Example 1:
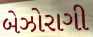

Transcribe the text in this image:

બેઝોરાગી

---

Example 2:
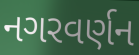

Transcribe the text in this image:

નગરવર્ણન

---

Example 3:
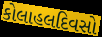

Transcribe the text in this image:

કોલાહલદિવસો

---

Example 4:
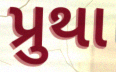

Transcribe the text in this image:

પ્રુથા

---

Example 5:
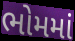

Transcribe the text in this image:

ભોમમાં